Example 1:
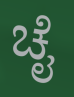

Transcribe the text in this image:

ಚೈ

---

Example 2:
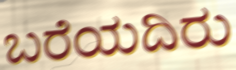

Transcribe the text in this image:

ಬರೆಯದಿರು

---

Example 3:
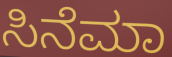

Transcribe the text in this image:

ಸಿನೆಮಾ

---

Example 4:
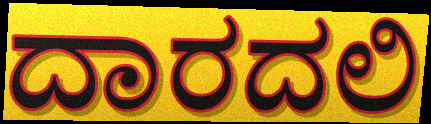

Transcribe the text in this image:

ದಾರದಲಿ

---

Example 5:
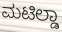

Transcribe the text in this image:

ಮಟಿಲ್ಡಾ